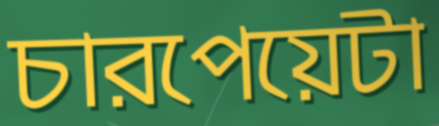
চারপেয়েটা